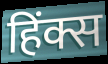
हिंक्स